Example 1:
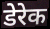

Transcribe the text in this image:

डेरेक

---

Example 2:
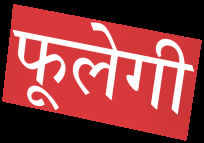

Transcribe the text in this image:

फूलेगी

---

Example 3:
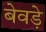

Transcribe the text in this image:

बेवड़े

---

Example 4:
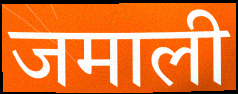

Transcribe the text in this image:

जमाली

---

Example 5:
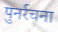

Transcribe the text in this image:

पुनर्रचना